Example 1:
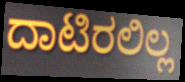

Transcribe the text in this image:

ದಾಟಿರಲಿಲ್ಲ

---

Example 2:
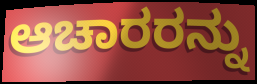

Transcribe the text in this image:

ಆಚಾರರನ್ನು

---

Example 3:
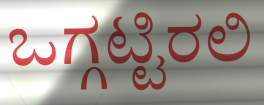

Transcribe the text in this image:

ಒಗ್ಗಟ್ಟಿರಲಿ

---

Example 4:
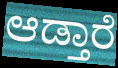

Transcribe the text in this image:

ಆಡ್ತಾರೆ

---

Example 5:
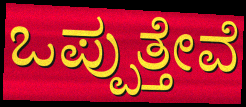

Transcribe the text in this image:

ಒಪ್ಪುತ್ತೇವೆ